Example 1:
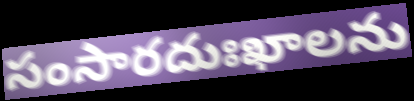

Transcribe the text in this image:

సంసారదుఃఖాలను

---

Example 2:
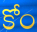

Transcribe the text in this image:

కోం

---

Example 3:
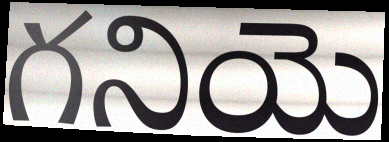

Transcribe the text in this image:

గనియె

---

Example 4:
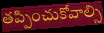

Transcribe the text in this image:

తప్పించుకోవాల్సి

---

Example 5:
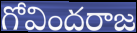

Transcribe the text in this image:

గోవిందరాజ